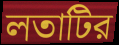
লতাটির